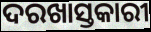
ଦରଖାସ୍ତକାରୀ